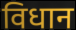
विधान